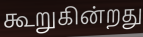
கூறுகின்றது